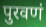
पुरवणं